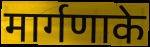
मार्गणाके